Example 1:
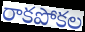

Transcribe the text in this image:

రాకపోకల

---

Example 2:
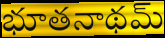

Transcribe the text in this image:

భూతనాథమ్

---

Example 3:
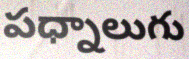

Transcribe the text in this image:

పధ్నాలుగు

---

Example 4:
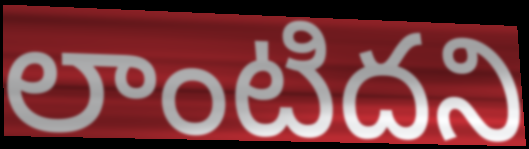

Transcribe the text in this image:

లాంటిదని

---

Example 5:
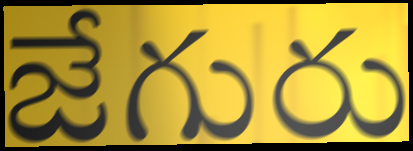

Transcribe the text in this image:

జేగురు